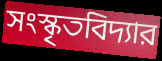
সংস্কৃতবিদ্যার